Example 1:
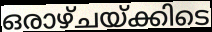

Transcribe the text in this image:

ഒരാഴ്ചയ്ക്കിടെ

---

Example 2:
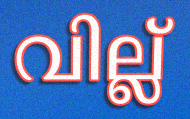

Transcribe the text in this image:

വില്ല്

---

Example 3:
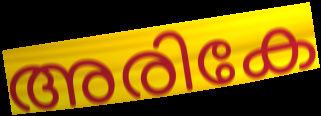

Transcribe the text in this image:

അരികേ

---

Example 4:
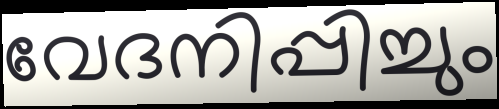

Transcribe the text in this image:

വേദനിപ്പിച്ചും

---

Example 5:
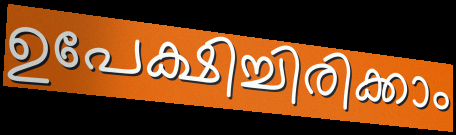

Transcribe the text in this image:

ഉപേക്ഷിച്ചിരിക്കാം